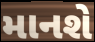
માનશે